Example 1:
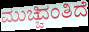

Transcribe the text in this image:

ಮುಚ್ಚಿದಂತಿದೆ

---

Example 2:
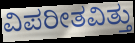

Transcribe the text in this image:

ವಿಪರೀತವಿತ್ತು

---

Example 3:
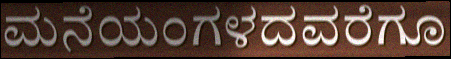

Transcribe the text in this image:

ಮನೆಯಂಗಳದವರೆಗೂ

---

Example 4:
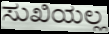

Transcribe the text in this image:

ಸುಖಿಯಲ್ಲ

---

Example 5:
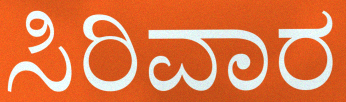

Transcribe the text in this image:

ಸಿರಿವಾರ